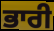
ਭਾਰੀ